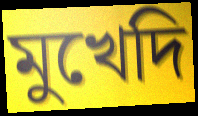
মুখেদি